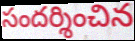
సందర్శించిన